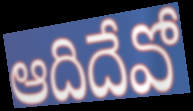
ఆదిదేవో